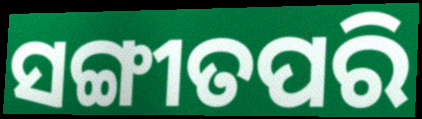
ସଙ୍ଗୀତପରି